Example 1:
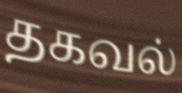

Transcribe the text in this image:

தகவல்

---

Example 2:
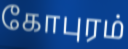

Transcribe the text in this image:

கோபுரம்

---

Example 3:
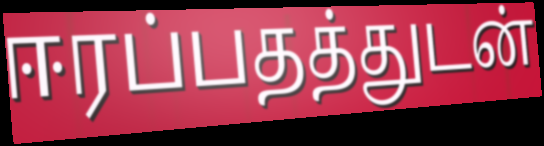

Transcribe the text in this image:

ஈரப்பதத்துடன்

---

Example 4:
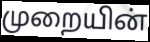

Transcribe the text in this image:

முறையின்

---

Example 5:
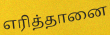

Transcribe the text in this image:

எரித்தானை